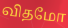
விதமோ